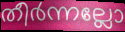
തീർന്നല്ലോ